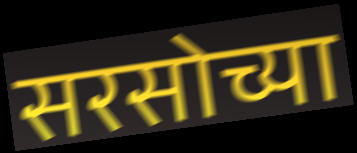
सरसोच्या